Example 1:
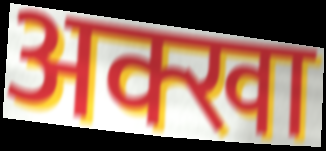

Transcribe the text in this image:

अक्खा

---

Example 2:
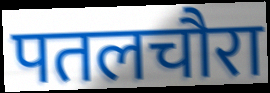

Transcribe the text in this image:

पतलचौरा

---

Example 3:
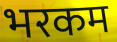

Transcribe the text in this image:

भरकम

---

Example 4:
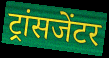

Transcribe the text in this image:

ट्रांसजेंटर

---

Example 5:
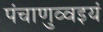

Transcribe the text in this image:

पंचाणुव्वइयं